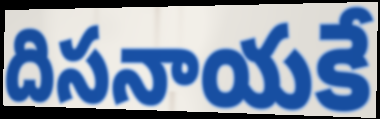
దిసనాయకే